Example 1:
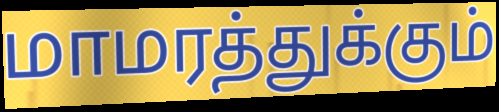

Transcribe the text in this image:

மாமரத்துக்கும்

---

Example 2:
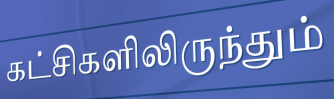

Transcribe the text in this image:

கட்சிகளிலிருந்தும்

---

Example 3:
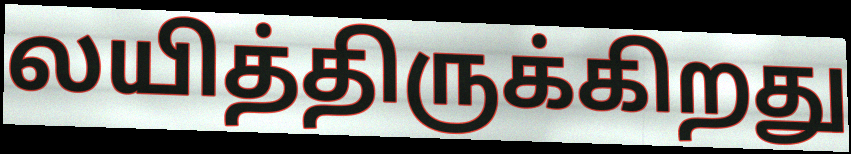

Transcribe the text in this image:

லயித்திருக்கிறது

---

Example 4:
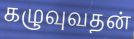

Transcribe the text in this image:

கழுவுவதன்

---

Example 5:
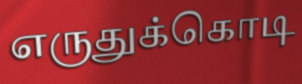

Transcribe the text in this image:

எருதுக்கொடி